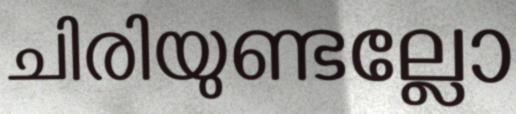
ചിരിയുണ്ടല്ലോ